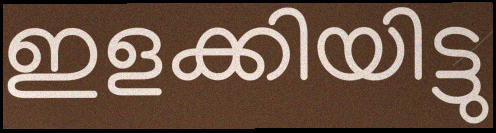
ഇളക്കിയിട്ടു